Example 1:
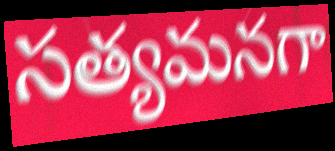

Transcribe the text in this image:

సత్యమనగా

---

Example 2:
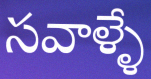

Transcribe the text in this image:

సవాళ్ళే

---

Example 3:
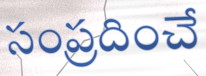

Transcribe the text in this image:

సంప్రదించే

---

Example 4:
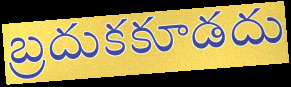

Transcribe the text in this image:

బ్రదుకకూడదు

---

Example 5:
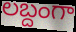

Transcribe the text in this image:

లబ్దంగా